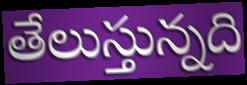
తేలుస్తున్నది